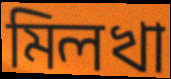
মিলখা